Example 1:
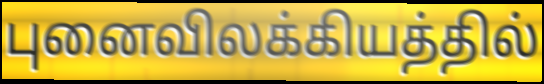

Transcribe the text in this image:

புனைவிலக்கியத்தில்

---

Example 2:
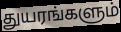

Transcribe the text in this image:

துயரங்களும்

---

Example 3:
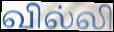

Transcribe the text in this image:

வில்லி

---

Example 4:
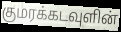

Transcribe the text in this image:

குமரக்கடவுளின்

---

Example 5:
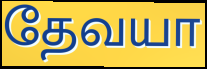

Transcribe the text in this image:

தேவயா